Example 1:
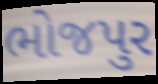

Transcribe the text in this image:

ભોજપુર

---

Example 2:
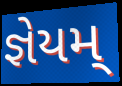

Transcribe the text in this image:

જ્ઞેયમ્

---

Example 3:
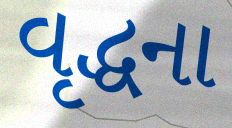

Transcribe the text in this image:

વૃદ્ધના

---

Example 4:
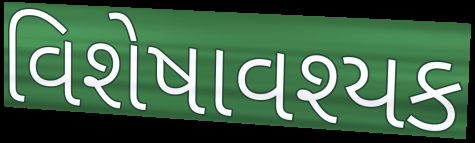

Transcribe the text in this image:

વિશેષાવશ્યક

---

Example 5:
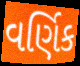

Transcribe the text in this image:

વર્ણિક